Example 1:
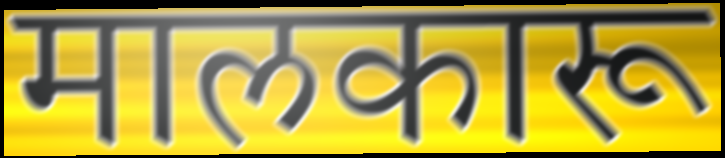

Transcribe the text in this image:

मालकारू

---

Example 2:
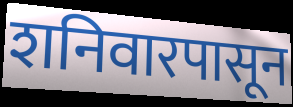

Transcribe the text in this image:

शनिवारपासून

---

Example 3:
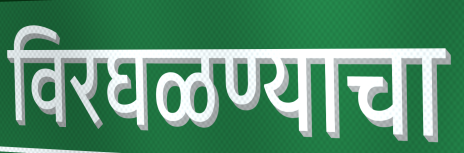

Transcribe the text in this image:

विरघळण्याचा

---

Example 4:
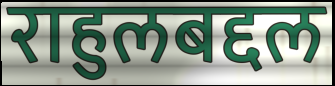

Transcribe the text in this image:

राहुलबद्दल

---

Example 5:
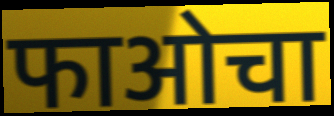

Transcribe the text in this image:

फाओचा